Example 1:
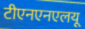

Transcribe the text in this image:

टीएनएनएलयू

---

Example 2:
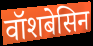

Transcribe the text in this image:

वॉशबेसिन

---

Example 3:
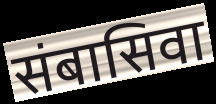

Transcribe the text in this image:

संबासिवा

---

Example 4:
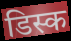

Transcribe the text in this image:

डिस्क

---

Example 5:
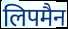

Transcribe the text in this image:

लिपमैन